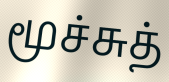
மூச்சுத்